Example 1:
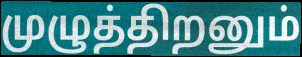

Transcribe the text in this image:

முழுத்திறனும்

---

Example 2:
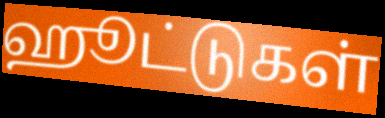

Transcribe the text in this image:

ஹூட்டுகள்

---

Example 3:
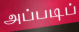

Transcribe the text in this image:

அப்படிப்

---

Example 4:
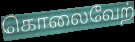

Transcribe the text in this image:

கொலைவேற்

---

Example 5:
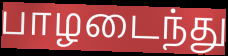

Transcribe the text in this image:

பாழடைந்து